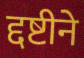
द्दष्टीने